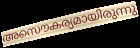
അസൌകര്യമായിരുന്നു